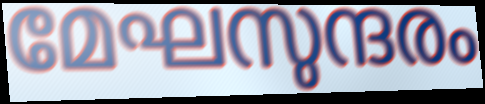
മേഘസുന്ദരം